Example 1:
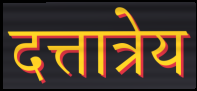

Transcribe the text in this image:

दत्तात्रेय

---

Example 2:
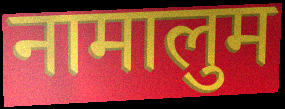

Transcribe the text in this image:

नामालुम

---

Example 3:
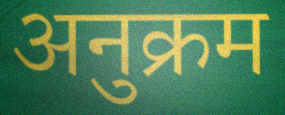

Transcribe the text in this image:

अनुक्रम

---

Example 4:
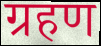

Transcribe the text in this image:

ग्रहण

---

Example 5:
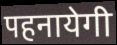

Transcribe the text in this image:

पहनायेगी